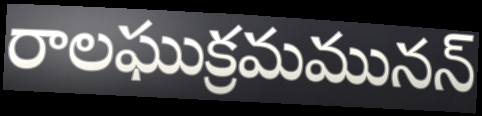
రాలఘుక్రమమునన్